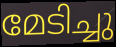
മേടിച്ചു